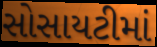
સોસાયટીમાં